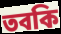
তবকি